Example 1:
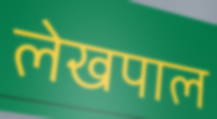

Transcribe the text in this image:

लेखपाल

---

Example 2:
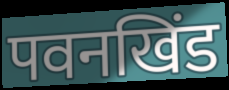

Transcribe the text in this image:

पवनखिंड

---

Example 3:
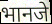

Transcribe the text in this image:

भानजे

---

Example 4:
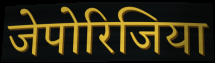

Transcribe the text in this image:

जेपोरिजिया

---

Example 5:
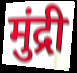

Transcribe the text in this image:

मुंद्री